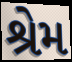
શ્રેમ